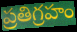
ప్రతిగ్రహం